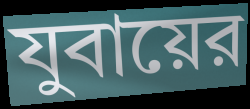
যুবায়ের